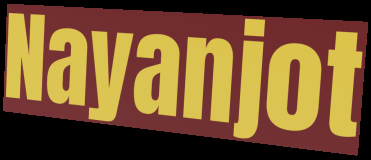
Nayanjot